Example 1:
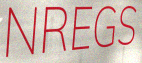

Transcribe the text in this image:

NREGS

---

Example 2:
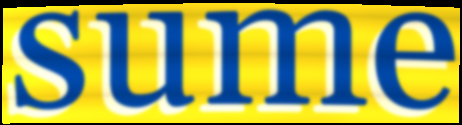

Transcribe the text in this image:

sume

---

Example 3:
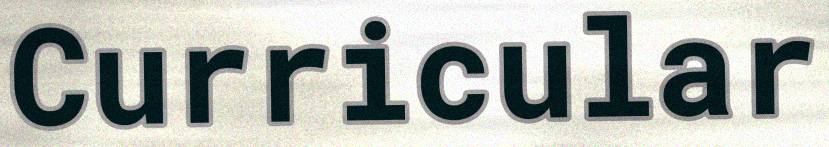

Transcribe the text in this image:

Curricular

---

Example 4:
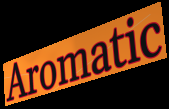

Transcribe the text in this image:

Aromatic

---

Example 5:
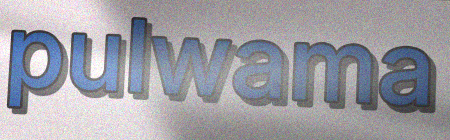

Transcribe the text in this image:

pulwama